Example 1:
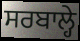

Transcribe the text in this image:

ਸਰਬਾਲ੍ਹੇ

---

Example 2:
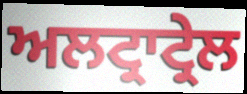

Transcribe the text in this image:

ਅਲਟ੍ਰਾਟ੍ਰੇਲ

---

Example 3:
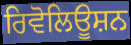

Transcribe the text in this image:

ਰਿਵੋਲਿਊਸ਼ਨ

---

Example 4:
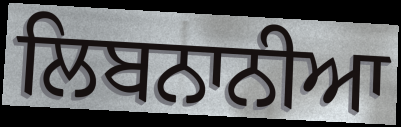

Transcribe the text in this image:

ਲਿਬਨਾਨੀਆ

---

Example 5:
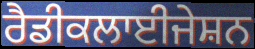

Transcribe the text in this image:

ਰੈਡੀਕਲਾਈਜੇਸ਼ਨ